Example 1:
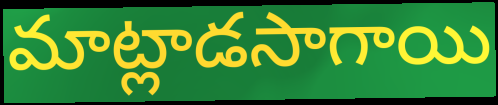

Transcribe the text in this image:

మాట్లాడసాగాయి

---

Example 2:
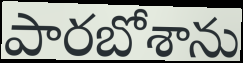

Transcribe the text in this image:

పారబోశాను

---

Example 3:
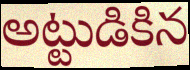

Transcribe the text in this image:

అట్టుడికిన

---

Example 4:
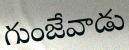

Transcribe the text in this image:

గుంజేవాడు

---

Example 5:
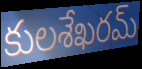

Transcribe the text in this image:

కులశేఖరమ్